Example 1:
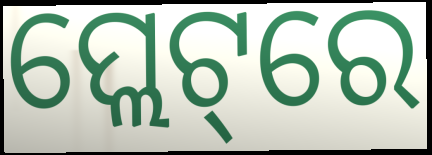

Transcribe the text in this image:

ପ୍ଲେଟ୍‌ରେ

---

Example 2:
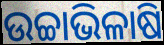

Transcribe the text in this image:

ଉଚ୍ଚାଭିଳାଷି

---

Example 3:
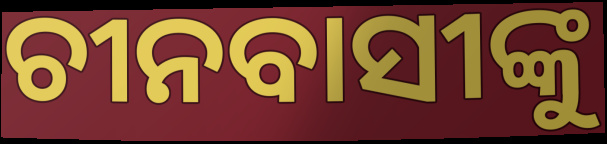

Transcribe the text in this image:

ଚୀନବାସୀଙ୍କୁ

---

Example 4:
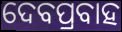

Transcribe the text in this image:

ଦେବପ୍ରବାହ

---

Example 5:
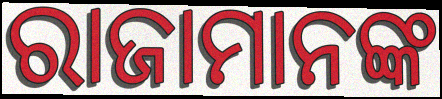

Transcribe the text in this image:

ରାଜାମାନଙ୍କ